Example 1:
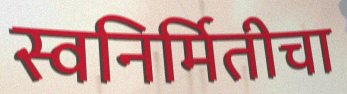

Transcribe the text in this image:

स्वनिर्मितीचा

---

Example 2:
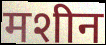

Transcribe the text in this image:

मशीन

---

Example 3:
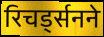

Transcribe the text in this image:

रिचर्ड्सनने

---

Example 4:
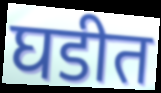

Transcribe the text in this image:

घडीत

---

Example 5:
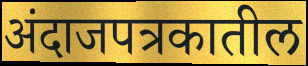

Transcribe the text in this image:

अंदाजपत्रकातील